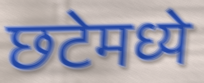
छटेमध्ये